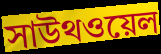
সাউথওয়েল